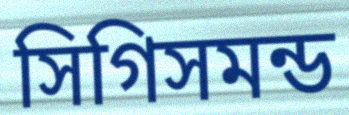
সিগিসমন্ড